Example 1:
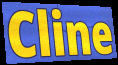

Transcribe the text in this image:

Cline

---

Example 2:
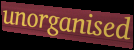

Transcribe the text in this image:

unorganised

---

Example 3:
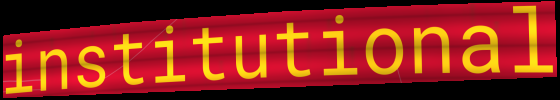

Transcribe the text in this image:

institutional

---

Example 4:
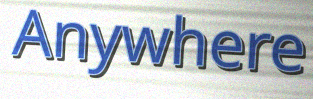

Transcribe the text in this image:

Anywhere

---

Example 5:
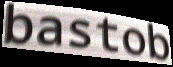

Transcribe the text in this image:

bastob